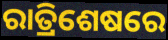
ରାତ୍ରିଶେଷରେ